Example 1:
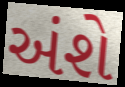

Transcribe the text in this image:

અંશે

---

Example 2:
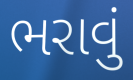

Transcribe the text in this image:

ભરાવું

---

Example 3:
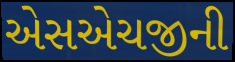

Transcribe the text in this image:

એસએચજીની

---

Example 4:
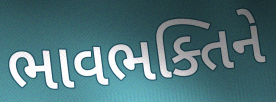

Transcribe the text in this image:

ભાવભક્તિને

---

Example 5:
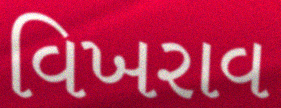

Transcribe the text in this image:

વિખરાવ